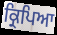
ਕ੍ਰਿਪਿਆ